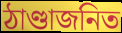
ঠাণ্ডাজনিত